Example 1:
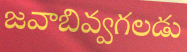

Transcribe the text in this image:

జవాబివ్వగలడు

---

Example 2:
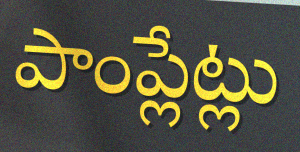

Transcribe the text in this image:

పాంప్లేట్లు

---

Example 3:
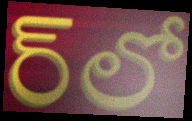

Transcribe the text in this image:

ర్‌లో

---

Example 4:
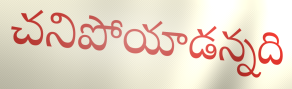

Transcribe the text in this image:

చనిపోయాడన్నది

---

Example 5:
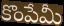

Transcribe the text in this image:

కొంపేమీ